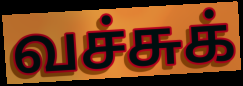
வச்சுக்